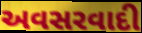
અવસરવાદી